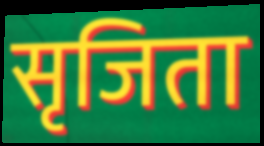
सृजिता